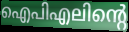
ഐപിഎലിന്റെ